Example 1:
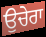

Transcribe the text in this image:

ਉਚੇਰਾ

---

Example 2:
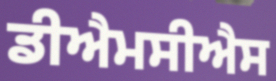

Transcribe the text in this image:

ਡੀਐਮਸੀਐਸ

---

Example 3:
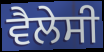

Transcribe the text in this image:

ਵੈਲੇਸੀ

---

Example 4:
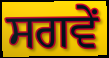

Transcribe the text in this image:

ਸਗਵੇਂ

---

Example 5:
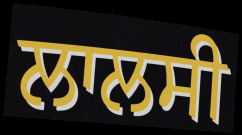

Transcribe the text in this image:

ਲਾਲਸੀ